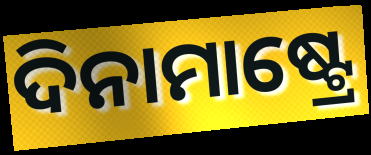
ଦିନାମାଷ୍ଟ୍ରେ